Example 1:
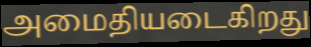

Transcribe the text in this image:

அமைதியடைகிறது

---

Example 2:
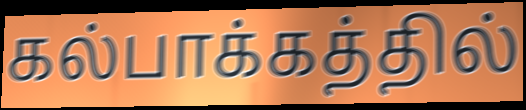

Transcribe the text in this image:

கல்பாக்கத்தில்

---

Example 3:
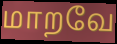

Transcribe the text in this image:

மாறவே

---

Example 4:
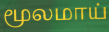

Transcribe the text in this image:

மூலமாய்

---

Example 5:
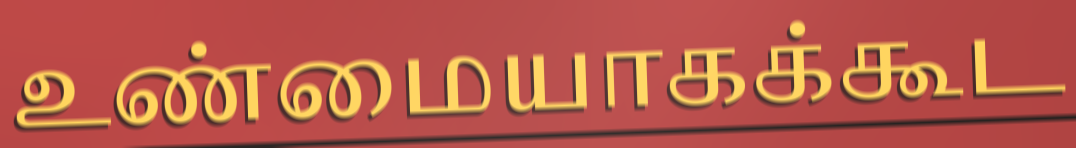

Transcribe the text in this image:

உண்மையாகக்கூட